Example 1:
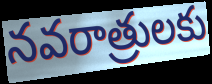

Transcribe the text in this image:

నవరాత్రులకు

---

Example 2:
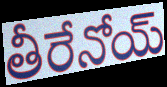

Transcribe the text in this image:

తీరేనోయ్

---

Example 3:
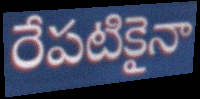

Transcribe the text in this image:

రేపటికైనా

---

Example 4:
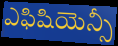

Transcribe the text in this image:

ఎఫిషియెన్సీ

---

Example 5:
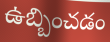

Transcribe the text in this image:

ఉబ్బించడం